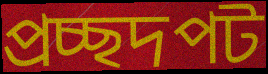
প্রচ্ছদপট